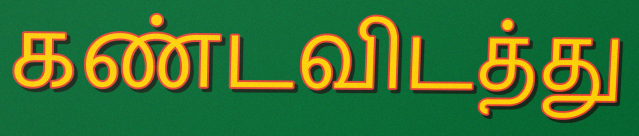
கண்டவிடத்து